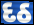
દઠ